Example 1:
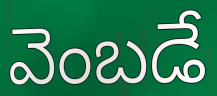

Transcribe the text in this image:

వెంబడే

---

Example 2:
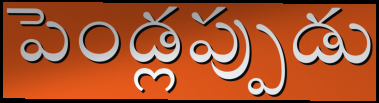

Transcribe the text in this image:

పెండ్లప్పుడు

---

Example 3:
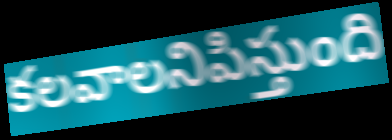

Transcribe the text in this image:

కలవాలనిపిస్తుంది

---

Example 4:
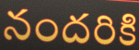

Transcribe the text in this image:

నందరికి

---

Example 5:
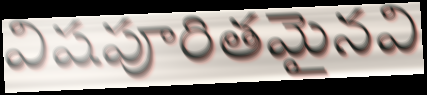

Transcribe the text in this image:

విషపూరితమైనవి